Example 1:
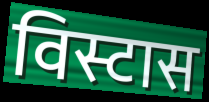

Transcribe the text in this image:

विस्टास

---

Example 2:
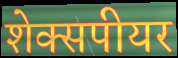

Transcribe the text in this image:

शेक्सपीयर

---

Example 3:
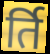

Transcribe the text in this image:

र्ति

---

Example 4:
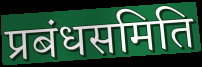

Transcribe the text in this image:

प्रबंधसमिति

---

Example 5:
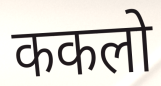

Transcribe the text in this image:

ककलो